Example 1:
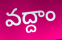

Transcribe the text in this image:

వద్దాం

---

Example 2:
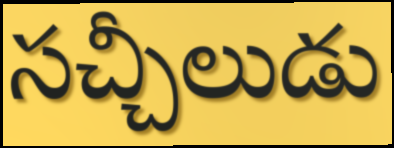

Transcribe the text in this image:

సచ్చీలుడు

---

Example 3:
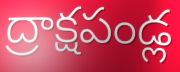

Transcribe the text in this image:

ద్రాక్షపండ్ల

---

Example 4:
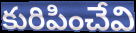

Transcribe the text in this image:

కురిపించేవి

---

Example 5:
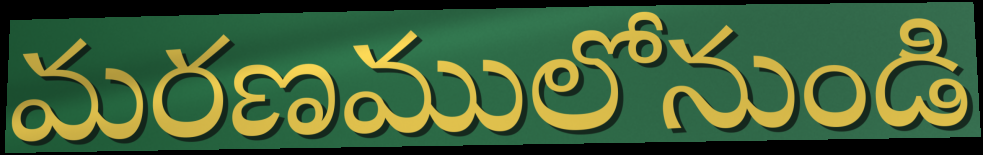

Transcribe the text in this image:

మరణములోనుండి